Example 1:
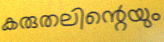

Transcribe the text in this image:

കരുതലിന്റെയും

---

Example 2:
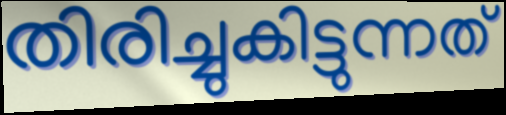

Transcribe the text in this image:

തിരിച്ചുകിട്ടുന്നത്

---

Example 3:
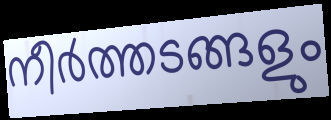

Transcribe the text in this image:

നീർത്തടങ്ങളും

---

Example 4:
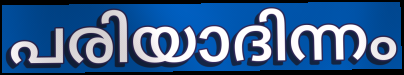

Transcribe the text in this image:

പരിയാദിന്നം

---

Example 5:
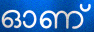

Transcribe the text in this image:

ഓണ്